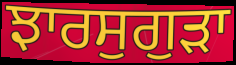
ਝਾਰਸੁਗੁੜਾ